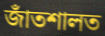
জাঁতশালত